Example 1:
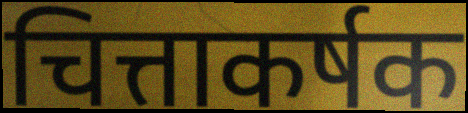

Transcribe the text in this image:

चित्ताकर्षक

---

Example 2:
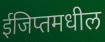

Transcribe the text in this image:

ईजिप्तमधील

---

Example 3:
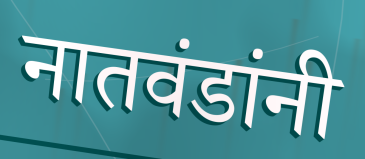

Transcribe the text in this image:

नातवंडांनी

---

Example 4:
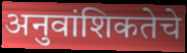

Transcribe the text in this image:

अनुवांशिकतेचे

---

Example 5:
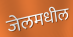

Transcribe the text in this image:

जेलमधील